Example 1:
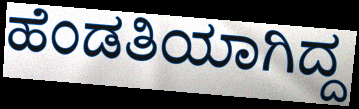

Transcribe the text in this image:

ಹೆಂಡತಿಯಾಗಿದ್ದ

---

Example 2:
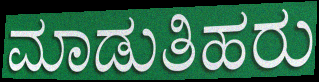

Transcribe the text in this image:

ಮಾಡುತಿಹರು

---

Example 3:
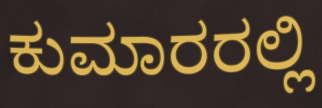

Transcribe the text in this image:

ಕುಮಾರರಲ್ಲಿ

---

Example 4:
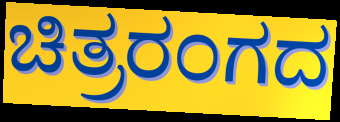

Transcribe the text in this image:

ಚಿತ್ರರಂಗದ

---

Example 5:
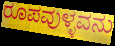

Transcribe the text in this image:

ರೂಪವುಳ್ಳವನು